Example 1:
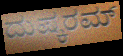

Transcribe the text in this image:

ದುಷ್ಕರಮ್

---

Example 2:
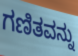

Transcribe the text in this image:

ಗಣಿತವನ್ನು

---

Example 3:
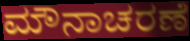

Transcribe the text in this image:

ಮೌನಾಚರಣೆ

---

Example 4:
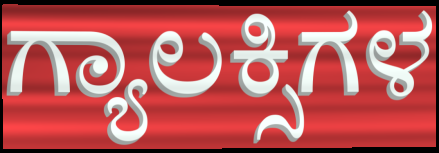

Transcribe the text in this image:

ಗ್ಯಾಲಕ್ಸಿಗಳ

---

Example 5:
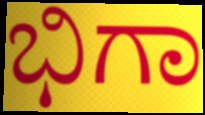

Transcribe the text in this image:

ಭಿಗಾ